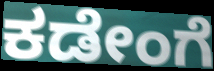
ಕಡೇಂಗೆ